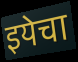
इयेचा